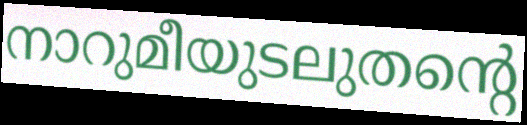
നാറുമീയുടലുതന്റെ